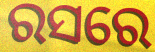
ରସରେ